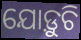
ଯୋଡ଼ୁଚି